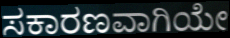
ಸಕಾರಣವಾಗಿಯೇ